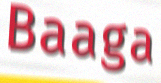
Baaga